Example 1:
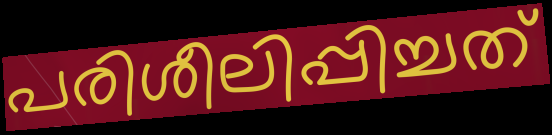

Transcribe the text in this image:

പരിശീലിപ്പിച്ചത്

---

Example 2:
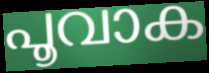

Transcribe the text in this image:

പൂവാക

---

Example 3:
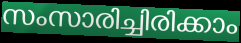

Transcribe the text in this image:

സംസാരിച്ചിരിക്കാം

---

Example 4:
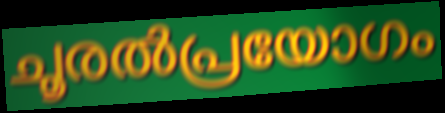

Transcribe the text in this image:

ചൂരൽപ്രയോഗം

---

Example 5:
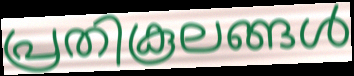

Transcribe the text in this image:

പ്രതികൂലങ്ങൾ